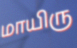
மாயிரு